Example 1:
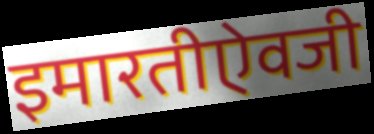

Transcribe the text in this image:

इमारतीऐवजी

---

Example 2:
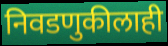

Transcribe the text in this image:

निवडणुकीलाही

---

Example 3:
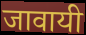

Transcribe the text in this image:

जावायी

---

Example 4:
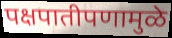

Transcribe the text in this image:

पक्षपातीपणामुळे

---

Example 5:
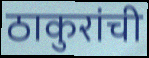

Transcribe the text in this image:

ठाकुरांची